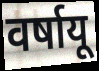
वर्षायू